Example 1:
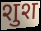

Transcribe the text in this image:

शुश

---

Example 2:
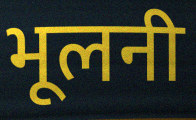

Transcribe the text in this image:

भूलनी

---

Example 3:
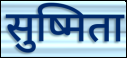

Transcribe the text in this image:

सुष्मिता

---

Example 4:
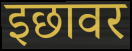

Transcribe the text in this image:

इछावर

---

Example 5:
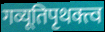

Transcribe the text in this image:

गव्यूतिपृथक्त्व